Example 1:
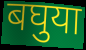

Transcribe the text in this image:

बघुया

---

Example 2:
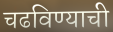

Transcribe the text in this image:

चढविण्याची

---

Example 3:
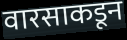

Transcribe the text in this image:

वारसाकडून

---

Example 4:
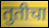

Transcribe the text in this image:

तुतीचा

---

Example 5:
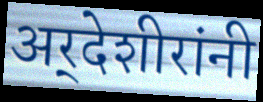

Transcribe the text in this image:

अर्देशीरांनी